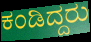
ಕಂಡಿದ್ದರು